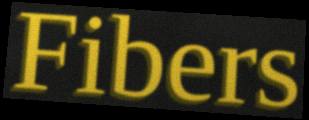
Fibers